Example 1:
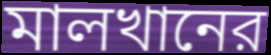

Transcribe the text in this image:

মালখানের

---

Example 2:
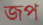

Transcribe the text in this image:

জপ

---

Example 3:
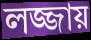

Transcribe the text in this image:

লজ্জায়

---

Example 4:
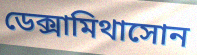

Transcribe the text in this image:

ডেক্সামিথাসোন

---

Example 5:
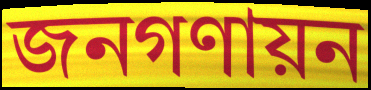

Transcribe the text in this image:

জনগণায়ন